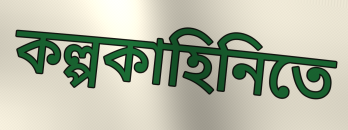
কল্পকাহিনিতে